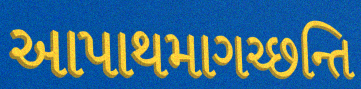
આપાથમાગચ્છન્તિ